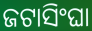
ଜଟାସିଂଘା